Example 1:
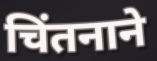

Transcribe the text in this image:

चिंतनाने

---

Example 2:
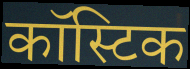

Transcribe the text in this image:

कॉस्टिक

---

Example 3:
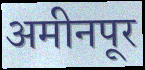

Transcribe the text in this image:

अमीनपूर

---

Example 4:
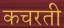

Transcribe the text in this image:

कचरती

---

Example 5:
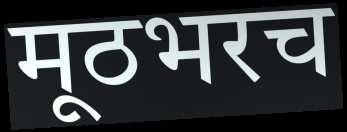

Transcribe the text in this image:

मूठभरच